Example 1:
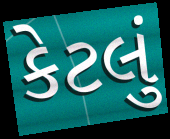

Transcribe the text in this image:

કેટલું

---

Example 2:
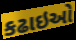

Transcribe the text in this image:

કઢાઇઓ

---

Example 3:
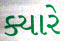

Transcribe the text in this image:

ક્યારે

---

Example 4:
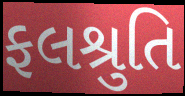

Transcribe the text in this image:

ફલશ્રુતિ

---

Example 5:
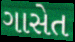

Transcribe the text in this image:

ગાસેત